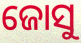
ଜୋସୁ